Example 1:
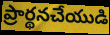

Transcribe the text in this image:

ప్రార్థనచేయుడి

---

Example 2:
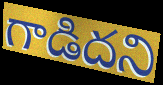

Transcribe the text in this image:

గాడిదని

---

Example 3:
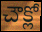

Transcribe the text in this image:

చౌక్లో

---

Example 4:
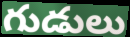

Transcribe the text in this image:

గుడులు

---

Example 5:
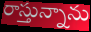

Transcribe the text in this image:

రాస్తున్నాను